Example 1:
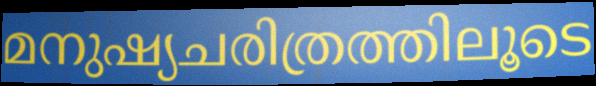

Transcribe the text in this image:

മനുഷ്യചരിത്രത്തിലൂടെ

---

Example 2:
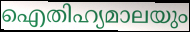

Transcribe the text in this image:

ഐതിഹ്യമാലയും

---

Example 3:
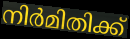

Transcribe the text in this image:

നിർമിതിക്ക്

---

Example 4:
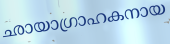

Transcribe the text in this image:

ഛായാഗ്രാഹകനായ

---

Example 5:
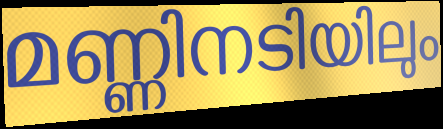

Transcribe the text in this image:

മണ്ണിനടിയിലും